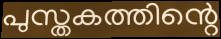
പുസ്തകത്തിന്റെ